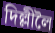
দিল্লীলৈ